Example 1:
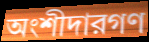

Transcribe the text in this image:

অংশীদারগণ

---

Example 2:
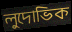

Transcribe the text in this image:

লুদোভিক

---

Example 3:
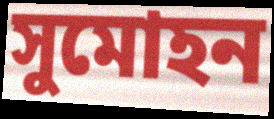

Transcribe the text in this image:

সুমোহন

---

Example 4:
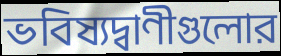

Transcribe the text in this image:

ভবিষ্যদ্বাণীগুলোর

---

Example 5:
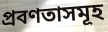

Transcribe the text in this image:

প্রবণতাসমূহ